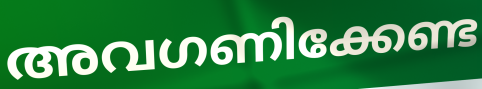
അവഗണിക്കേണ്ട